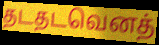
தடதடவெனத்